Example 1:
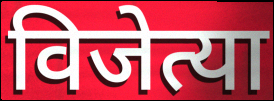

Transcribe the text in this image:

विजेत्या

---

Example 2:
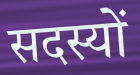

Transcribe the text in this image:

सदस्यों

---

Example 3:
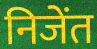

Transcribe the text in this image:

निजेंत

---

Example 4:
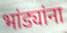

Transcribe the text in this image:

भांड्यांना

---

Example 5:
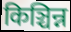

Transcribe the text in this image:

किञ्चिन्न